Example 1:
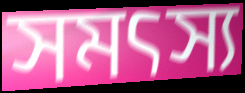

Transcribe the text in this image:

সমৎস্য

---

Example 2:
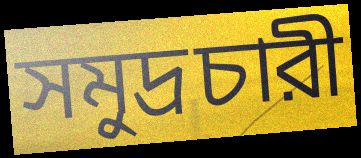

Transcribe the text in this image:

সমুদ্রচারী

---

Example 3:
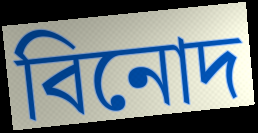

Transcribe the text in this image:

বিনোদ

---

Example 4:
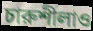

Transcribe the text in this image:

চারুশীলাও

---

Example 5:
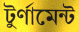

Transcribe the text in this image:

টুর্ণামেন্ট